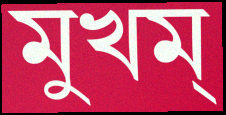
মুখম্